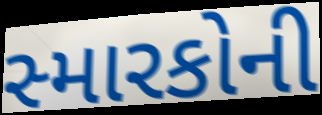
સ્મારકોની